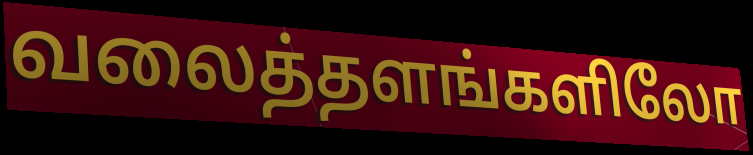
வலைத்தளங்களிலோ